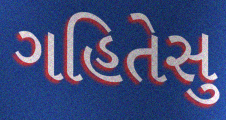
ગહિતેસુ